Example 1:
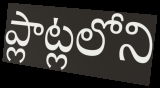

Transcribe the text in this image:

ప్లాట్లలోని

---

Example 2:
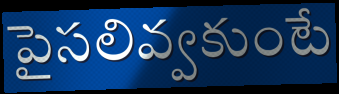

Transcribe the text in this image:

పైసలివ్వకుంటే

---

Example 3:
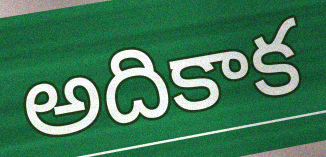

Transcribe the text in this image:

అదికాక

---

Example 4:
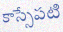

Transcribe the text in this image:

కాస్సేపటి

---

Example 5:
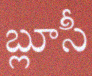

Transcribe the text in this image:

బ్లూసీ